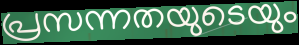
പ്രസന്നതയുടെയും